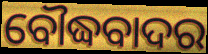
ବୌଦ୍ଧବାଦର